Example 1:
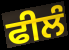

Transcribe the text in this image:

ਫੀਲੰ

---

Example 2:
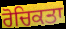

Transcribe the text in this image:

ਰੋਚਿਕਤਾ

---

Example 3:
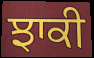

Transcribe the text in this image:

ਝਾਕੀ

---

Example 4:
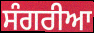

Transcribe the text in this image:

ਸੰਗਰੀਆ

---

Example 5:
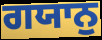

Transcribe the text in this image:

ਗਯਾਨੁ